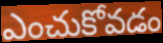
ఎంచుకోవడం